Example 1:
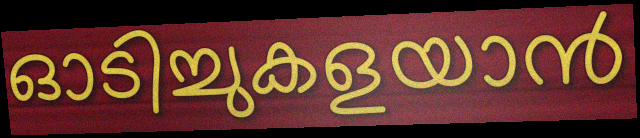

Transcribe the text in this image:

ഓടിച്ചുകളയാൻ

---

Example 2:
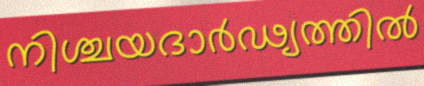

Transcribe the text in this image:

നിശ്ചയദാർഢ്യത്തിൽ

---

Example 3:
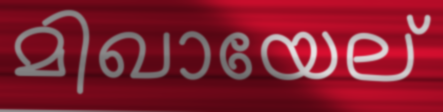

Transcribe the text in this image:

മിഖായേല്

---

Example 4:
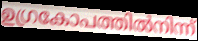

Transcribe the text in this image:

ഉഗ്രകോപത്തിൽനിന്ന്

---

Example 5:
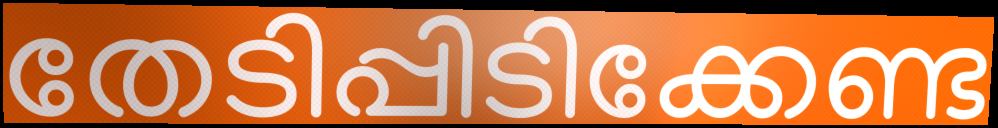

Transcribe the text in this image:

തേടിപ്പിടിക്കേണ്ട